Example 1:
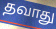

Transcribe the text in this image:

தவாது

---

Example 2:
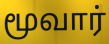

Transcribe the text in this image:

மூவார்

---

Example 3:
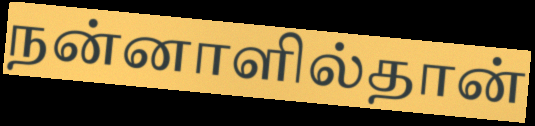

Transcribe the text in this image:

நன்னாளில்தான்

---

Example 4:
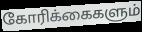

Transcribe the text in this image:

கோரிக்கைகளும்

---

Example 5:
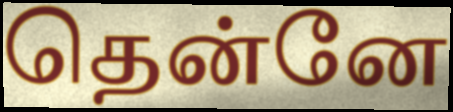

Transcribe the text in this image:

தென்னே